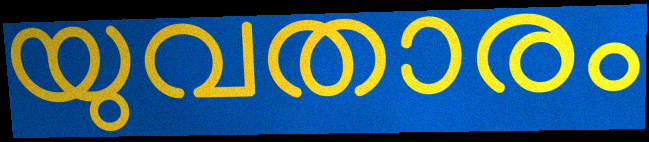
യുവതാരം